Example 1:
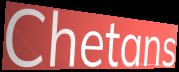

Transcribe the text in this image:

Chetans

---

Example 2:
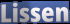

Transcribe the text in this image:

Lissen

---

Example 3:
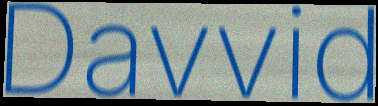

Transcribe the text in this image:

Davvid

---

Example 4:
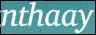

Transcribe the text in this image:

nthaay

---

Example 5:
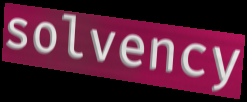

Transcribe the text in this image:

solvency